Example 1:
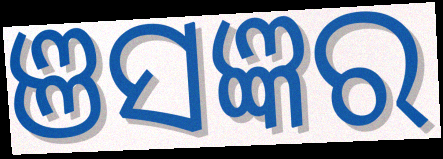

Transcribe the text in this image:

ଞସଜ୍ଞର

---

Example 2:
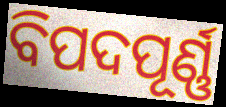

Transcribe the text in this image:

ବିପଦପୂର୍ଣ୍ଣ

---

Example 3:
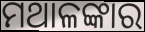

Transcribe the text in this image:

ମଥାଳଙ୍କାର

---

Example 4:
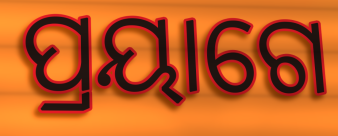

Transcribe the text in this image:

ପ୍ରୟାଗେ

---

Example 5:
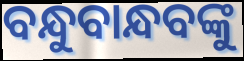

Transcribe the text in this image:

ବନ୍ଧୁବାନ୍ଧବଙ୍କୁ